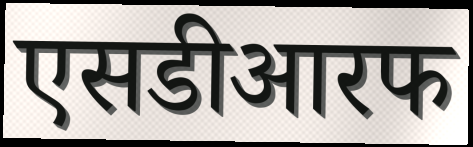
एसडीआरफ